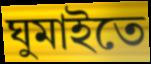
ঘুমাইতে